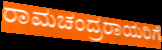
ರಾಮಚಂದ್ರರಾಯರಿಗೆ